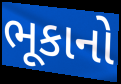
ભૂકાનો